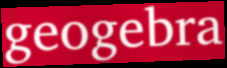
geogebra